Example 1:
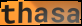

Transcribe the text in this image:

thasa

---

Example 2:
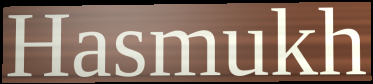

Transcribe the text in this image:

Hasmukh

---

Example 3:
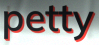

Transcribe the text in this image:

petty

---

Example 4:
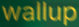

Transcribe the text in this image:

wallup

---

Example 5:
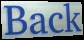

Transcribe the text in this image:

Back